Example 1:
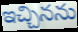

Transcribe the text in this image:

ఇచ్చినను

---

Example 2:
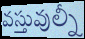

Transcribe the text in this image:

వస్తువుల్నీ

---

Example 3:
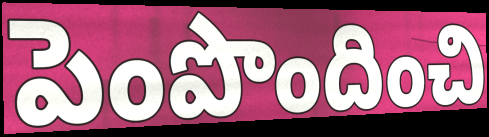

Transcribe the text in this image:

పెంపొందించి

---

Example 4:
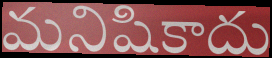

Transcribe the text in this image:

మనిషికాదు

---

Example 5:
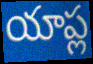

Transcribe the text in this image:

యాప్ల